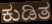
ಕುಡಿತ